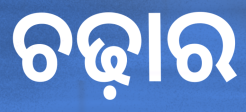
ଚଢ଼ାର